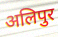
अलिपुर